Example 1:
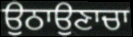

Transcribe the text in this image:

ਉਠਾਉਣਾਚਾ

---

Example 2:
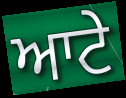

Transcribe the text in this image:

ਆਟੇ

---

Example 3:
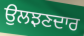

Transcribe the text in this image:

ਉਲਝਣਦਾਰ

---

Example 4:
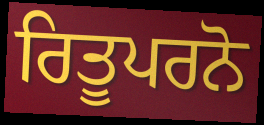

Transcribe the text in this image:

ਰਿਤੂਪਰਨੋ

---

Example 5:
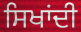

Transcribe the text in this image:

ਸਿਖਾਂਦੀ